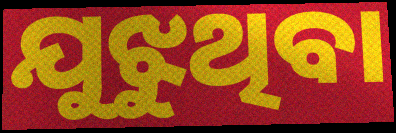
ଯୁଝୁଥିବା